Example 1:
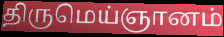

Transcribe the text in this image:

திருமெய்ஞானம்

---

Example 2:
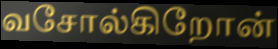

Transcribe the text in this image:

வசோல்கிறோன்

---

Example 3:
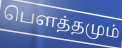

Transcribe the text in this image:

பௌத்தமும்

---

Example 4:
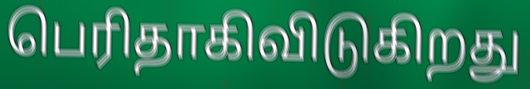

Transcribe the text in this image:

பெரிதாகிவிடுகிறது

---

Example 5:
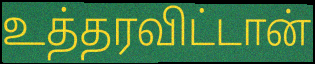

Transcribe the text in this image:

உத்தரவிட்டான்